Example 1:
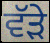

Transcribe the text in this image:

ਵੱਡ਼ੇ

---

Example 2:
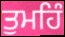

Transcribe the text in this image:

ਤੁਮਹਿੰ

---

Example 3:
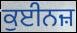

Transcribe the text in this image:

ਕੁਈਨਜ਼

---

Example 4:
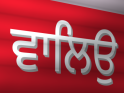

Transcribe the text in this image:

ਵਾਲਿਉ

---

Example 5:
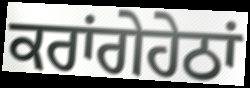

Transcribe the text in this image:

ਕਰਾਂਗੇਹੇਠਾਂ